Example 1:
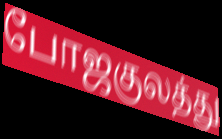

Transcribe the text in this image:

போஜகுலத்து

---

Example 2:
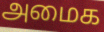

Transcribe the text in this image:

அமைக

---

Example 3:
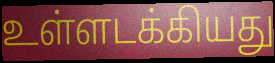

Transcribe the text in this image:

உள்ளடக்கியது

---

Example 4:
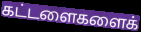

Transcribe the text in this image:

கட்டளைகளைக்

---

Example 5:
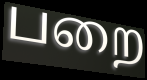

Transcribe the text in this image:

பறை